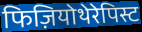
फिज़ियोथेरेपिस्ट